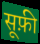
सूफ़ी